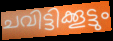
ചവിട്ടിക്കൂട്ടും